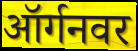
ऑर्गनवर